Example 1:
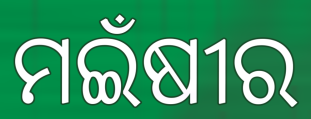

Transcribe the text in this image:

ମଇଁଷୀର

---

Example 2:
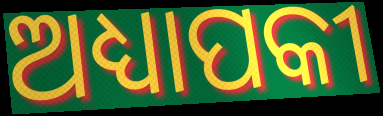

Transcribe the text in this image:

ଅଧ୍ୟାପକୀ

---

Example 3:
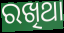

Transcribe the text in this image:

ରଖିଥା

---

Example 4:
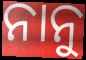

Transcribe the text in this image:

ନାନୁ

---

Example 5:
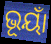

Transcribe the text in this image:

ଭୂୟାଁ